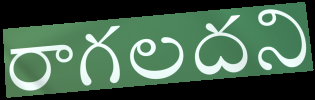
రాగలదని